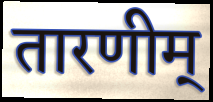
तारणीम्